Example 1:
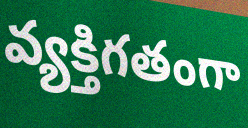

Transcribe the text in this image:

వ్యక్తిగతంగా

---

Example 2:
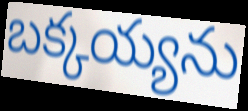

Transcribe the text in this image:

బక్కయ్యను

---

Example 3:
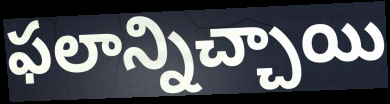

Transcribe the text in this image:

ఫలాన్నిచ్చాయి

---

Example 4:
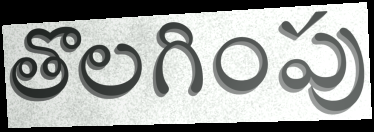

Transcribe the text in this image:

తొలగింపు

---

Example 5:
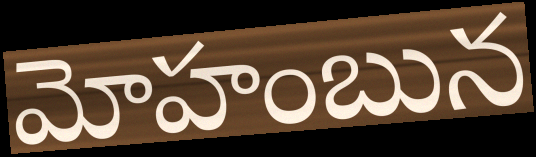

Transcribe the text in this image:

మోహంబున